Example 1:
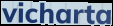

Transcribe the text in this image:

vicharta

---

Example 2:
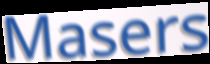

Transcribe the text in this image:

Masers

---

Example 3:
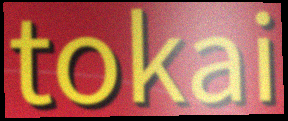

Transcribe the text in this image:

tokai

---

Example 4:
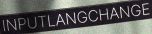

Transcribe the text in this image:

INPUTLANGCHANGE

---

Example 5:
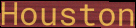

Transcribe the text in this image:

Houston